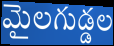
మైలగుడ్డల